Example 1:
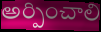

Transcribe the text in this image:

అర్పించాలి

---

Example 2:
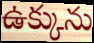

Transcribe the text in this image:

ఉక్కును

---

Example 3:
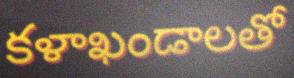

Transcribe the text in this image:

కళాఖండాలతో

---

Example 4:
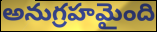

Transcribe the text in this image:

అనుగ్రహమైంది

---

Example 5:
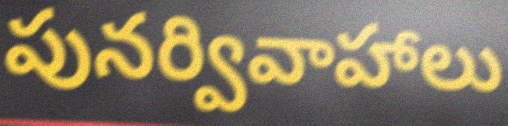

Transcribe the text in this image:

పునర్వివాహాలు